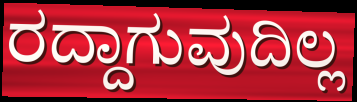
ರದ್ದಾಗುವುದಿಲ್ಲ